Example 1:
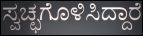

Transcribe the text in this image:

ಸ್ವಚ್ಛಗೊಳಿಸಿದ್ದಾರೆ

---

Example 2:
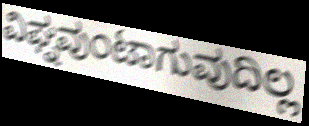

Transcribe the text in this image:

ವಿಘ್ನವುಂಟಾಗುವುದಿಲ್ಲ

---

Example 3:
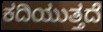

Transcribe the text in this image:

ಕದಿಯುತ್ತದೆ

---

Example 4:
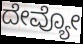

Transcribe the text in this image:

ದೇವ್ಯೋ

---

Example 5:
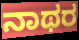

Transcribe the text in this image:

ನಾಥರ